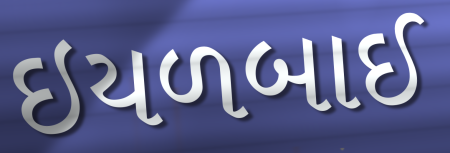
ઇયળબાઈ